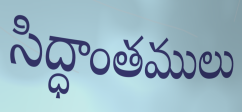
సిద్ధాంతములు